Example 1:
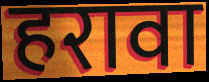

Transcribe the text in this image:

हरावा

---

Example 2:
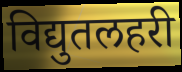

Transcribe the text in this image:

विद्युतलहरी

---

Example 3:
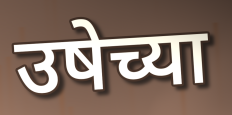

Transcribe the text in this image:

उषेच्या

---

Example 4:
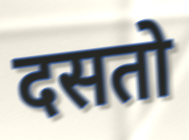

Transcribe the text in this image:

दसतो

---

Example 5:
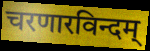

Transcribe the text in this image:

चरणारविन्दम्